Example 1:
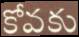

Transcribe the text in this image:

కోవకు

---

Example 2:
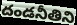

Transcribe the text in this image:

దండనీతిని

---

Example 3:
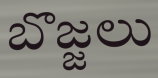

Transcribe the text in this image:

బొజ్జలు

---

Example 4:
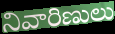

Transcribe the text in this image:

నివారిణులు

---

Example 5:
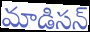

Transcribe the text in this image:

మాడిసన్